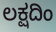
ಲಕ್ಷದಿಂ